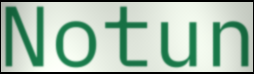
Notun